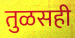
तुळसही